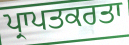
ਪ੍ਰਾਪਤਕਰਤਾ